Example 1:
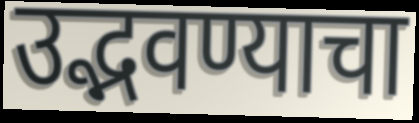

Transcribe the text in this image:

उद्भवण्याचा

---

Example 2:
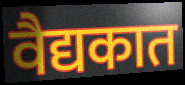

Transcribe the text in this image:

वैद्यकात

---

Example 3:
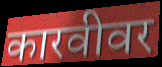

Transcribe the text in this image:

कारवीवर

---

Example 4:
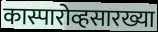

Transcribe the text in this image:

कास्पारोव्हसारख्या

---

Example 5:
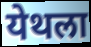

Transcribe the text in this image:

येथला